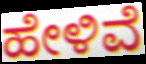
ಹೇಳಿವೆ